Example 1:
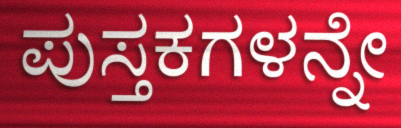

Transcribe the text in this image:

ಪುಸ್ತಕಗಳನ್ನೇ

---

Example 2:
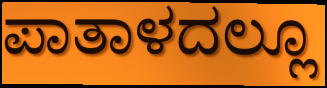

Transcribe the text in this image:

ಪಾತಾಳದಲ್ಲೂ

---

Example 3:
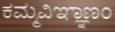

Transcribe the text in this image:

ಕಮ್ಮವಿಞ್ಞಾಣಂ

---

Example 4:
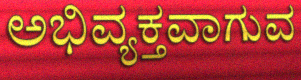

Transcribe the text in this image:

ಅಭಿವ್ಯಕ್ತವಾಗುವ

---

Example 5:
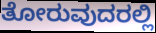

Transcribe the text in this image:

ತೋರುವುದರಲ್ಲಿ